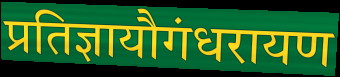
प्रतिज्ञायौगंधरायण